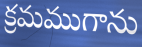
క్రమముగాను